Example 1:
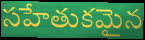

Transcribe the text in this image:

సహేతుకమైన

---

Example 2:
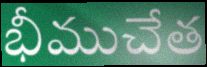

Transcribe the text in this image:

భీముచేత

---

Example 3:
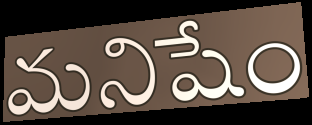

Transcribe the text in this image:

మనిషేం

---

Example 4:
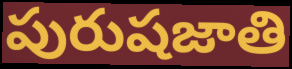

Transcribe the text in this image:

పురుషజాతి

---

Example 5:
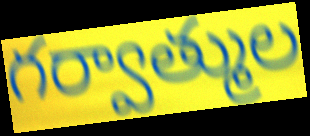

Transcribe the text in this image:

గర్వాత్ముల